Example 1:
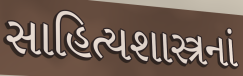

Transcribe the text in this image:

સાહિત્યશાસ્ત્રનાં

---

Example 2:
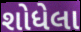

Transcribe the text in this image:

શોધેલા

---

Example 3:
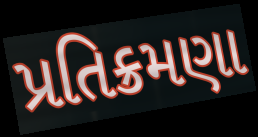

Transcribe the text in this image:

પ્રતિક્રમણા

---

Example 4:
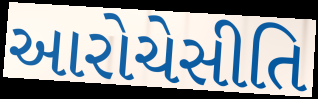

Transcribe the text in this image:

આરોચેસીતિ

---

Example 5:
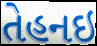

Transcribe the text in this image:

તેહનઇ